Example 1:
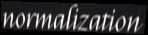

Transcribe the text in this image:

normalization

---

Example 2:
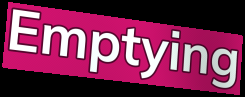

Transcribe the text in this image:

Emptying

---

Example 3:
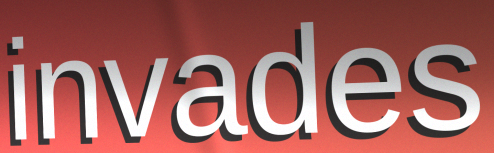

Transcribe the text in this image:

invades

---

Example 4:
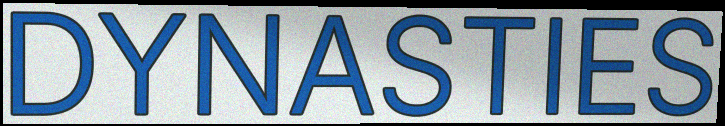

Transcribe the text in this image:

DYNASTIES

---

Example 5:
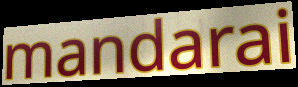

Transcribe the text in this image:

mandarai